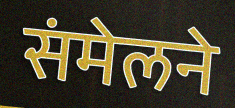
संमेलने